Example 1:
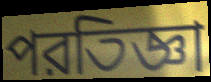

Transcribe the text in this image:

পরতিজ্ঞা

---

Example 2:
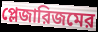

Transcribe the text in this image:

প্লেজারিজমের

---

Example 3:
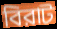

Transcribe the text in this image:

বিরাট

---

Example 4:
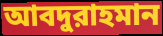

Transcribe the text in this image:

আবদুরাহমান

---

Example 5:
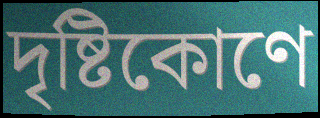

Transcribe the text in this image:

দৃষ্টিকোণে